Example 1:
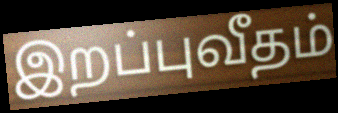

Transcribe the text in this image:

இறப்புவீதம்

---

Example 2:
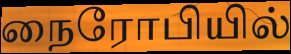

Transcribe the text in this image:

நைரோபியில்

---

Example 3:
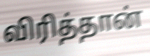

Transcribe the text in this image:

விரித்தான்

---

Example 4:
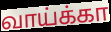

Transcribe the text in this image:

வாய்க்கா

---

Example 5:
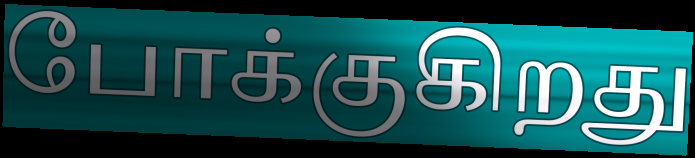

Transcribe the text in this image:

போக்குகிறது